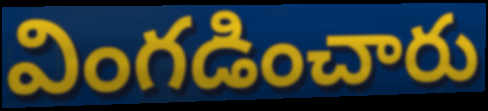
వింగడించారు